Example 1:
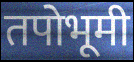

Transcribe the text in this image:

तपोभूमी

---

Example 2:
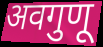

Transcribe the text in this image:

अवगुणू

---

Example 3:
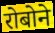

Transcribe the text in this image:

रोबोने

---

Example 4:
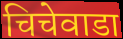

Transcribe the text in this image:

चिचेवाडा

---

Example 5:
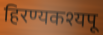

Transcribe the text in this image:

हिरण्यकश्यपू